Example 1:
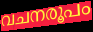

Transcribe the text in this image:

വചനരൂപം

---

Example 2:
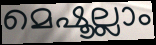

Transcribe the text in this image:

മെഷൂല്ലാം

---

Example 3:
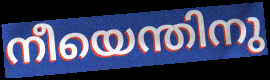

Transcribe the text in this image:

നീയെന്തിനു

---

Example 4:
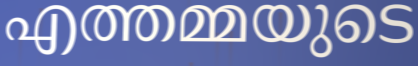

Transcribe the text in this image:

എത്തമ്മയുടെ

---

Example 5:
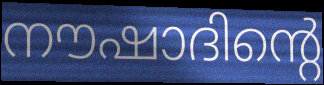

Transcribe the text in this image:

നൗഷാദിന്റെ